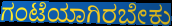
ಗಂಟೆಯಾಗಿರಬೇಕು